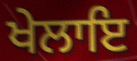
ਖੇਲਾਇ